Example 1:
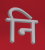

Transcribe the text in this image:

नि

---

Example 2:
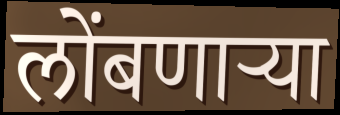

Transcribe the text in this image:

लोंबणार्‍या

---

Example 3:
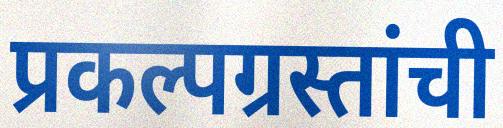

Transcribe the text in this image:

प्रकल्पग्रस्तांची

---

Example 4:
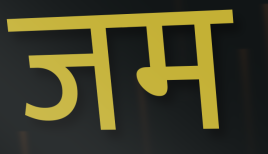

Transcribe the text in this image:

जम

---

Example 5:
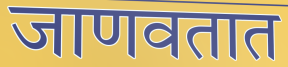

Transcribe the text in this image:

जाणवतात